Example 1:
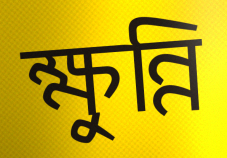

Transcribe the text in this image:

ক্ষুন্নি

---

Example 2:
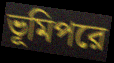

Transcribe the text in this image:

ভূমিপরে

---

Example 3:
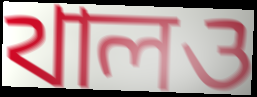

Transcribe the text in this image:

থালও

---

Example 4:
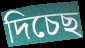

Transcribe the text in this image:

দিচেছ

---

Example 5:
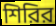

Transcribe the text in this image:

শিরির